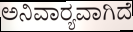
ಅನಿವಾರ‍್ಯವಾಗಿದೆ